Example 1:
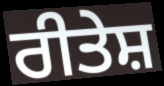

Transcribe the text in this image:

ਰੀਤੇਸ਼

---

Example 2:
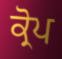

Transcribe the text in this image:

ਕ੍ਰੋਪ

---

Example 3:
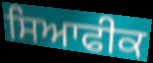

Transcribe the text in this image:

ਸਿਆਫੀਕ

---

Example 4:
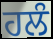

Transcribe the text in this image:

ਹਲੰ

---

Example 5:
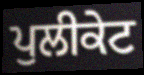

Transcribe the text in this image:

ਪੁਲੀਕੇਟ